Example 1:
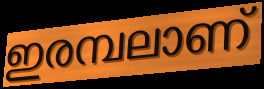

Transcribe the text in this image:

ഇരമ്പലാണ്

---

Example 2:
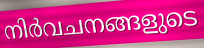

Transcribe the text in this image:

നിർവചനങ്ങളുടെ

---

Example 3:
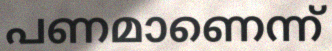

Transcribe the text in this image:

പണമാണെന്ന്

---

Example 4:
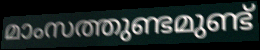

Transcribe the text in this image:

മാംസത്തുണ്ടമുണ്ട്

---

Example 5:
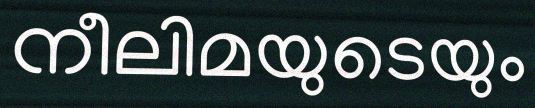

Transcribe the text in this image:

നീലിമയുടെയും